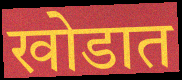
खोडात